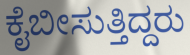
ಕೈಬೀಸುತ್ತಿದ್ದರು